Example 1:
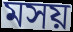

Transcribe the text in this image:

মসয়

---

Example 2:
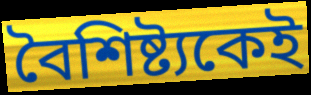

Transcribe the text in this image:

বৈশিষ্ট্যকেই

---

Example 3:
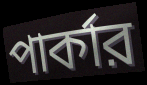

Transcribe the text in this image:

পার্কার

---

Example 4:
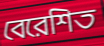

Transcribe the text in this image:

বেরেশিত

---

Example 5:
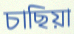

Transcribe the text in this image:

চাছিয়া